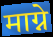
माग्ने